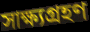
সাক্ষ্যগ্রহণ